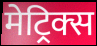
मेट्रिक्‍स